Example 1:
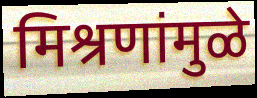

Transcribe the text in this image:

मिश्रणांमुळे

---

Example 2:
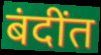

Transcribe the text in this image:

बंदींत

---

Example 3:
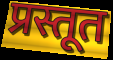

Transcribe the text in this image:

प्रस्तूत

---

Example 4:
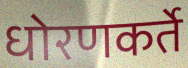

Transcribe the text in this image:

धोरणकर्ते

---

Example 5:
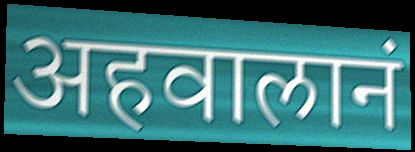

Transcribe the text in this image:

अहवालानं